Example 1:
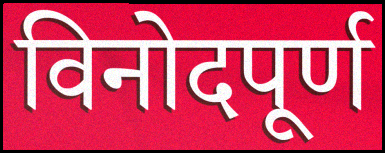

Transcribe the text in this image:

विनोदपूर्ण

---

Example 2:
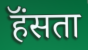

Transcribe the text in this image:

हॅंसता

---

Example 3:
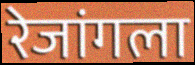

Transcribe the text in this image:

रेजांगला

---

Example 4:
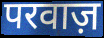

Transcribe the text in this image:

परवाज़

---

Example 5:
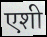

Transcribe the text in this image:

एशी